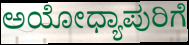
ಅಯೋಧ್ಯಾಪುರಿಗೆ